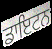
ਡਾਇਟਨ